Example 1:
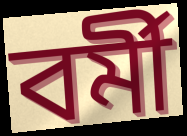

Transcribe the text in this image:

বর্মী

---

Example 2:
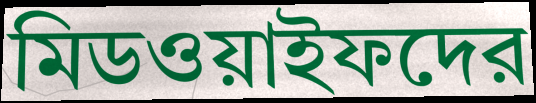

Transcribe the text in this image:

মিডওয়াইফদের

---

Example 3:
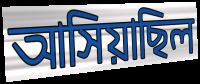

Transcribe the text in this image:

আসিয়াছিল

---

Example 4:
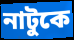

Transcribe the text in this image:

নাটুকে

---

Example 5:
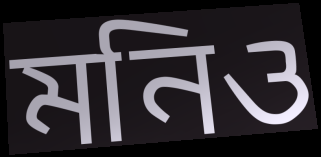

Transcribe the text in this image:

মনিও